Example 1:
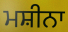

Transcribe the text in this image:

ਮਸ਼ੀਨਾ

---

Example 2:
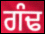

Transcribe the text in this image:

ਗੰਢ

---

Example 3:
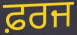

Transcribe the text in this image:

ਫ਼ਰਜ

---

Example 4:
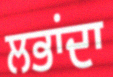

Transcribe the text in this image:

ਲਭਾਂਦਾ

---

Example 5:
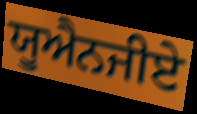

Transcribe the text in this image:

ਯੂਐਨਜੀਏ